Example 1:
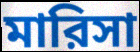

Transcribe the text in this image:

মারিসা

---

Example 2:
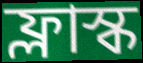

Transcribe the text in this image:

ফ্লাস্ক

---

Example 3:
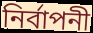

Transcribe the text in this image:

নির্বাপনী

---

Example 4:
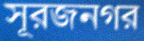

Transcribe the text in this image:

সূরজনগর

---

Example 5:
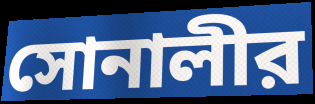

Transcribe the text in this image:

সোনালীর